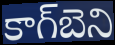
కాగ్‌బెని